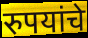
रुपयांचे